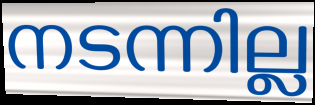
നടന്നില്ല